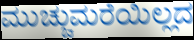
ಮುಚ್ಚುಮರೆಯಿಲ್ಲದ